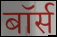
बॉर्स